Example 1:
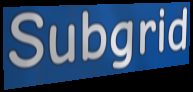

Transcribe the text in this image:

Subgrid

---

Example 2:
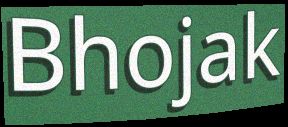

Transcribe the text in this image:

Bhojak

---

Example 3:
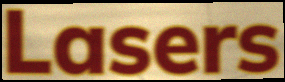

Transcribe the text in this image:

Lasers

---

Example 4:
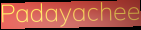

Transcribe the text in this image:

Padayachee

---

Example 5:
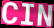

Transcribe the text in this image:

CIN